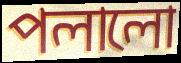
পলালো